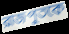
রাজপুতকে